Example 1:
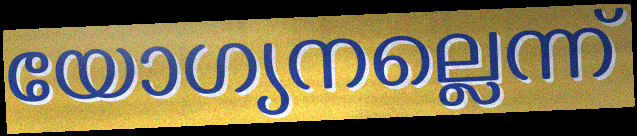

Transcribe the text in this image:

യോഗ്യനല്ലെന്ന്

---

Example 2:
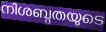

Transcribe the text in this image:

നിശബ്ദതയുടെ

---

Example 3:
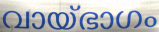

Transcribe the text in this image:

വായ്ഭാഗം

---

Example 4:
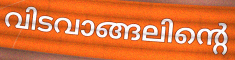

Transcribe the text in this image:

വിടവാങ്ങലിന്റെ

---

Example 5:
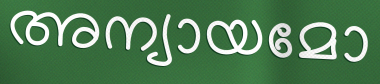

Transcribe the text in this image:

അന്യായമോ